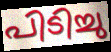
പിടിച്ചു